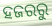
ହଜରରୁ